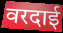
वरदाई